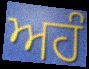
ਅਹੰ